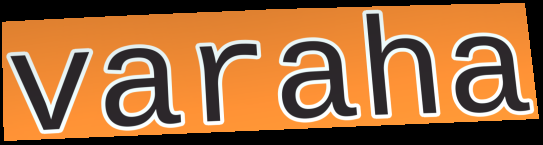
varaha